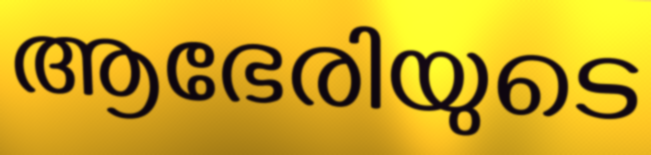
ആഭേരിയുടെ